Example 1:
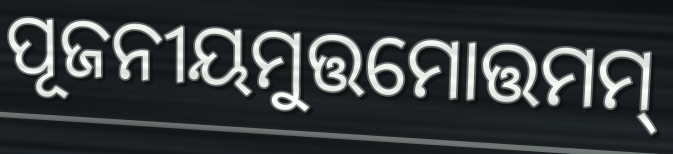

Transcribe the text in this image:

ପୂଜନୀୟମୁତ୍ତମୋତ୍ତମମ୍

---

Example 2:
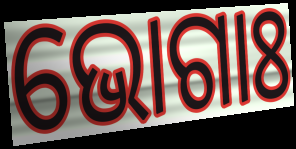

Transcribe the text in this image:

ଭୋଗାଃ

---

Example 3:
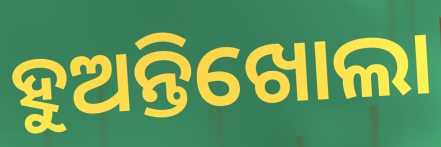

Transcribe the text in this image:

ହୁଅନ୍ତିଖୋଲା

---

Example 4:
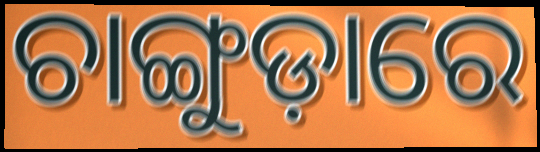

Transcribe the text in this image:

ଚାଙ୍ଗୁଡ଼ାରେ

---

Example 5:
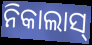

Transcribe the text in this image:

ନିକାଲାସ୍